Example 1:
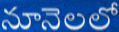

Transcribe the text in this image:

నూనెలలో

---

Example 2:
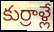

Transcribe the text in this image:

కుర్రాళ్లే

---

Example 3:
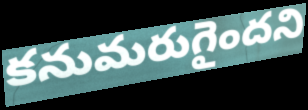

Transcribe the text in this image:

కనుమరుగైందని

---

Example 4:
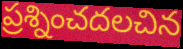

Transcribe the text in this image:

ప్రశ్నించదలచిన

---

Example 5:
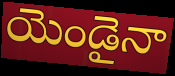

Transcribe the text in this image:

యెండైనా